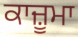
ਕਾਜ਼ੂਮਾ